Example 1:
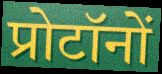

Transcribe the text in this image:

प्रोटॉनों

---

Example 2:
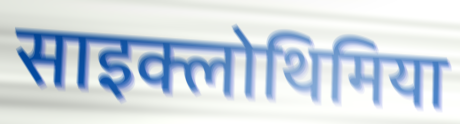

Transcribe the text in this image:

साइक्लोथिमिया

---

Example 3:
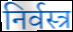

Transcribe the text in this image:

निर्वस्त्र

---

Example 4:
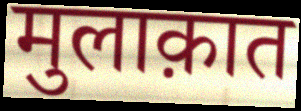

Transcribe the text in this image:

मुलाक़ात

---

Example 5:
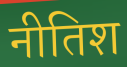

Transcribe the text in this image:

नीतिश